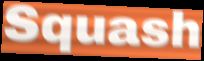
Squash